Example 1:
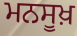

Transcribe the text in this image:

ਮਨਸੂਖ਼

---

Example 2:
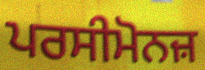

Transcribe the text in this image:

ਪਰਸੀਮੋਨਜ਼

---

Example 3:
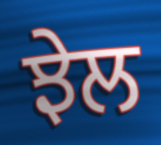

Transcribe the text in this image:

ਝੇਲ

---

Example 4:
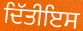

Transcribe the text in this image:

ਦਿੱਤੀਇਸ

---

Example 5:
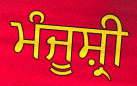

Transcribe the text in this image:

ਮੰਜੂਸ਼੍ਰੀ